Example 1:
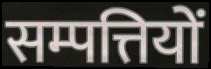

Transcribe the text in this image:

सम्‍पत्तियों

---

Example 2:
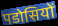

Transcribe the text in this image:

पडोसियों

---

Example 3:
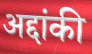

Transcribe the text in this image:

अद्दांकी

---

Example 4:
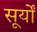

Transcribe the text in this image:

सूर्यों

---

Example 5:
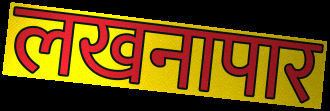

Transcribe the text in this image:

लखनापार